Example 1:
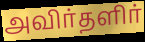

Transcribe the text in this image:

அவிர்தளிர்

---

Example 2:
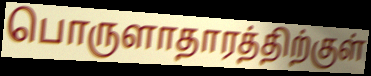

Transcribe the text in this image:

பொருளாதாரத்திற்குள்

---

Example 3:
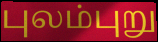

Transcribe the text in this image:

புலம்புறு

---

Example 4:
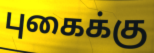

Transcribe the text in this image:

புகைக்கு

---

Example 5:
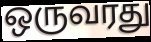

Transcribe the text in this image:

ஒருவரது